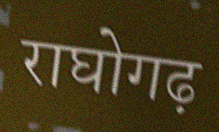
राघोगढ़